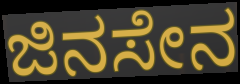
ಜಿನಸೇನ